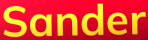
Sander